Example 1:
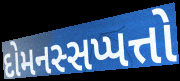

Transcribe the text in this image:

દોમનસ્સપ્પત્તો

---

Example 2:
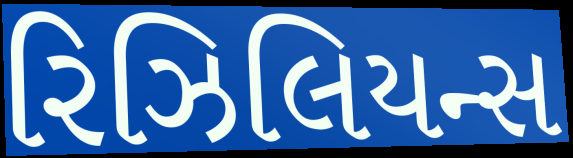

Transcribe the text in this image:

રિઝિલિયન્સ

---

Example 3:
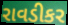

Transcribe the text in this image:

રાવડીકર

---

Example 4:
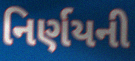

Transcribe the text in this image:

નિર્ણયની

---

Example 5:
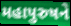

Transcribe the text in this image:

મહાપુરુષને